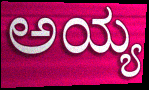
ಅಯ್ಯ